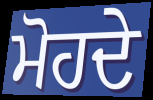
ਮੋਹਦੇ